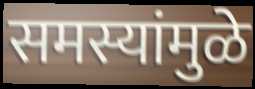
समस्यांमुळे